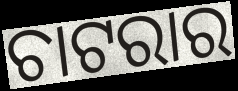
ଚାଟରାର